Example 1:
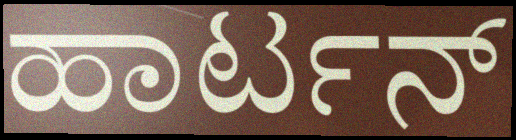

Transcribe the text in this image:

ಹಾರ್ಟನ್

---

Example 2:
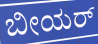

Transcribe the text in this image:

ಬೀಯರ್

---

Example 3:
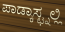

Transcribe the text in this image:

ಪಾಡ್ಕಾಸ್ಟ್ನಲ್ಲಿ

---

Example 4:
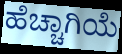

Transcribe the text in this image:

ಹೆಚ್ಚಾಗಿಯೆ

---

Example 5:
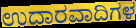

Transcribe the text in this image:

ಉದಾರವಾದಿಗಳ